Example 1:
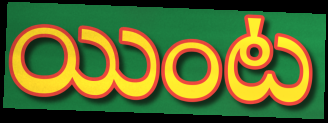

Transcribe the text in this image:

యింట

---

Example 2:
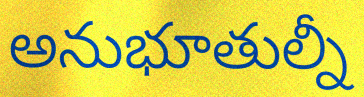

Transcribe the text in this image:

అనుభూతుల్నీ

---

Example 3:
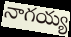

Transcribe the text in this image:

నాగయ్య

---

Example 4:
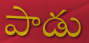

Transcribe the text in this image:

పాడు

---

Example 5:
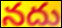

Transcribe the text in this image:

నదు